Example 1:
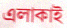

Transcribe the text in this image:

এলাকাই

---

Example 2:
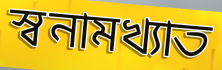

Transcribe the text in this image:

স্বনামখ্যাত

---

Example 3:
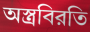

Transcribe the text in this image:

অস্ত্রবিরতি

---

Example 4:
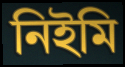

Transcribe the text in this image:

নিইমি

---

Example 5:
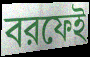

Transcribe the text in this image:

বরফেই